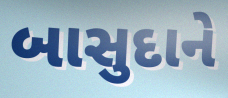
બાસુદાને